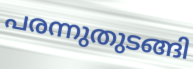
പരന്നുതുടങ്ങി